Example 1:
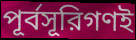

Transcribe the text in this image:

পূর্বসূরিগণই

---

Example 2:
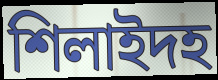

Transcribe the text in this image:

শিলাইদহ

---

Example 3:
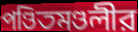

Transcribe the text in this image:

পণ্ডিতমণ্ডলীর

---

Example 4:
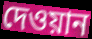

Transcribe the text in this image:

দেওয়ান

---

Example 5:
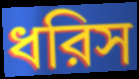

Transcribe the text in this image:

ধরিস